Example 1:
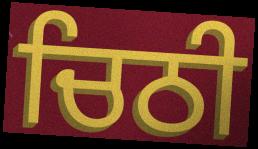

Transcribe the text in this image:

ਚਿਠੀ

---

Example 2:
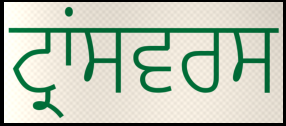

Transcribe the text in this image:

ਟ੍ਰਾਂਸਵਰਸ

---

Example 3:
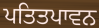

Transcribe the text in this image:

ਪਤਿਤਪਾਵਨ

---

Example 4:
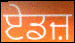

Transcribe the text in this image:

ਏਡਜ਼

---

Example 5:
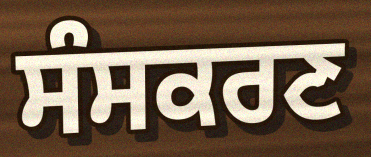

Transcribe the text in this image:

ਸੰਸਕਰਣ